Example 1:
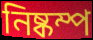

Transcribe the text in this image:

নিষ্কম্প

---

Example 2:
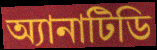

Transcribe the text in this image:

অ্যানাটিডি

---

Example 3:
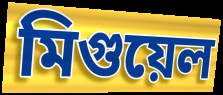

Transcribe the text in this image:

মিগুয়েল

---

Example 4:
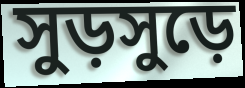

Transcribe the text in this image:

সুড়সুড়ে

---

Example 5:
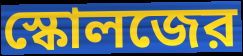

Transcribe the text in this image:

স্কোলজের